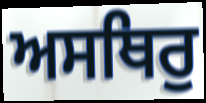
ਅਸਥਿਰੁ